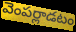
వెంపర్లాడటం